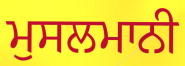
ਮੁਸਲਮਾਨੀ